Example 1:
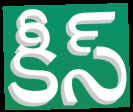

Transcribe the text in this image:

కీస్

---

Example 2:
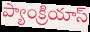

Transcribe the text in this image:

ప్యాంక్రియాస్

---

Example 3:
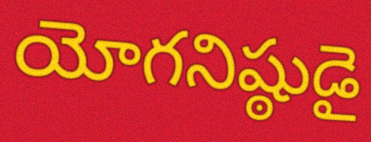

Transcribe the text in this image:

యోగనిష్ఠుడై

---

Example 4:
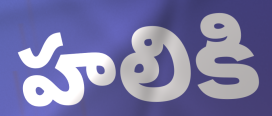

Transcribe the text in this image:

హలికి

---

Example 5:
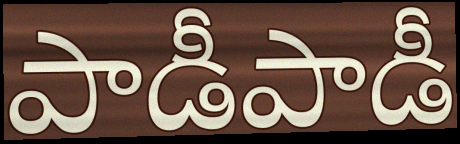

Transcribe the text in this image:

పాడీపాడీ